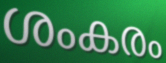
ശംകരം